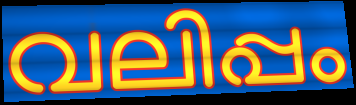
വലിപ്പം